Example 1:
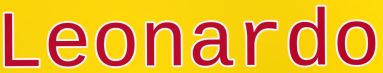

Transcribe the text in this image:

Leonardo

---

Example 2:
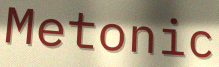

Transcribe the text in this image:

Metonic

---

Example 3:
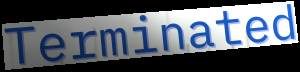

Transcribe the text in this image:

Terminated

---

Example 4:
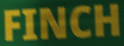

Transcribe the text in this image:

FINCH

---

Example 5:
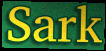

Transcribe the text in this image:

Sark